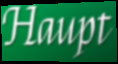
Haupt